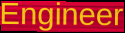
Engineer